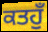
ਕਤਹੁਁ